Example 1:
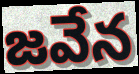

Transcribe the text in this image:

జవేన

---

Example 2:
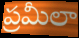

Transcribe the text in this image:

ప్రమీలా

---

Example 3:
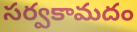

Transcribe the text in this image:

సర్వకామదం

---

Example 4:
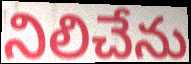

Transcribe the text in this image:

నిలిచేను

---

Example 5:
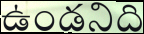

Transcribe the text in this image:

ఉండనిది